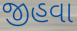
જીહવા